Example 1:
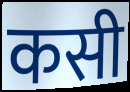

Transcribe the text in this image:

कसी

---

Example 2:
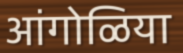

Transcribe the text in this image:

आंगोळिया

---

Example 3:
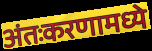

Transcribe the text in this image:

अंतःकरणामध्ये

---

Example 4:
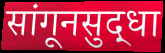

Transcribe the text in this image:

सांगूनसुद्धा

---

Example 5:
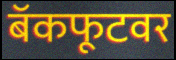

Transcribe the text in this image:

बॅकफूटवर